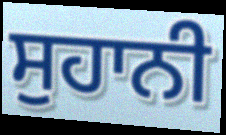
ਸੁਹਾਨੀ